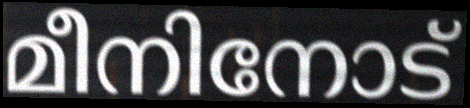
മീനിനോട്